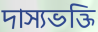
দাস্যভক্তি